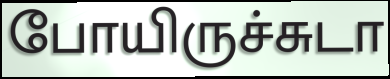
போயிருச்சுடா